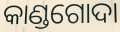
କାଣ୍ଡଗୋଦା